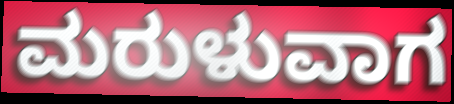
ಮರುಳುವಾಗ